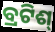
ବ୍ରଟିଶ୍